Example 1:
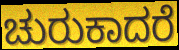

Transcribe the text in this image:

ಚುರುಕಾದರೆ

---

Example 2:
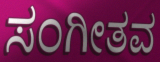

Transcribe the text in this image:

ಸಂಗೀತವ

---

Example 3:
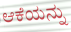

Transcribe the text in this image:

ಆಕೆಯನ್ನು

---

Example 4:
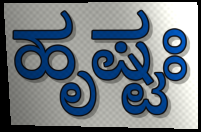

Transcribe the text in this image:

ಹೃಷ್ಟಃ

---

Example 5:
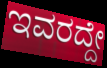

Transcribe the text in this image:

ಇವರದ್ದೇ